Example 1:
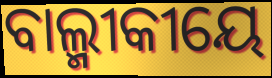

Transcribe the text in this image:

ବାଲ୍ମୀକୀୟେ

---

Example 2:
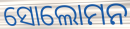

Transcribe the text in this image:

ସୋଲୋମନ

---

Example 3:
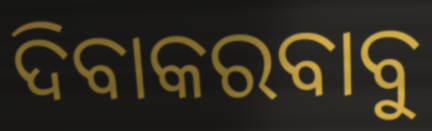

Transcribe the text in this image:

ଦିବାକରବାବୁ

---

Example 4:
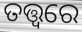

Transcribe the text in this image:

ତତ୍ତ୍ୱରେ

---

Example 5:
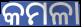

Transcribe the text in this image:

କମଳା